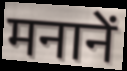
मनानें